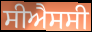
ਸੀਐਸਸੀ